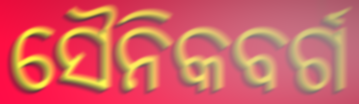
ସୈନିକବର୍ଗ